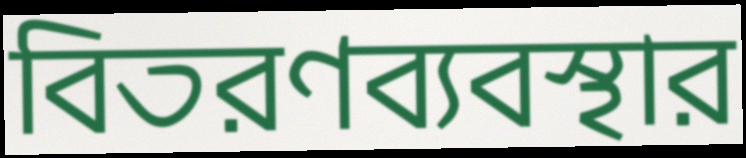
বিতরণব্যবস্থার